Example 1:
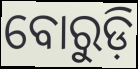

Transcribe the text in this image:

ବୋରୁଡ଼ି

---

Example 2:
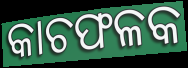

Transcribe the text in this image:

କାଚଫଳକ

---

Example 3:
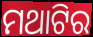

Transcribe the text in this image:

ମଥାଟିର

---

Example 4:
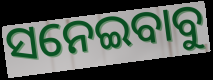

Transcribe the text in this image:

ସନେଇବାବୁ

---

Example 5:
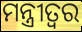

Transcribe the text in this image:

ମନ୍ତ୍ରୀତ୍ୱର